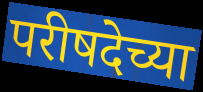
परीषदेच्या